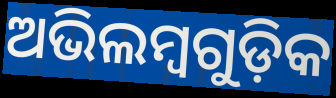
ଅଭିଲମ୍ବଗୁଡ଼ିକ